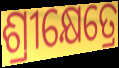
ଶ୍ରୀକ୍ଷେତ୍ରେ